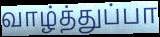
வாழ்த்துப்பா